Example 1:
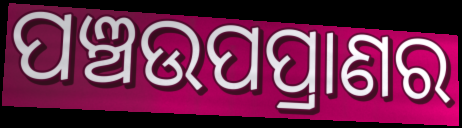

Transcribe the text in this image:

ପଞ୍ଚଉପପ୍ରାଣର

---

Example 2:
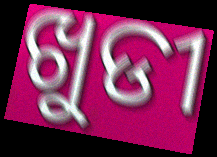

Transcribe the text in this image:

ଖୁଡୀ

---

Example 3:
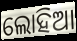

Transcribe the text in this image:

ଲୋହିଆ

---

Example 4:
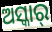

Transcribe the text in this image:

ଅସ୍କାର୍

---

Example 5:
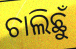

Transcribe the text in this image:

ଚାଲିଛୁଁ